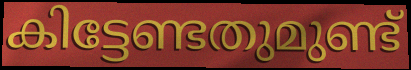
കിട്ടേണ്ടതുമുണ്ട്